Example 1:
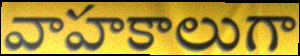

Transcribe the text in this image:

వాహకాలుగా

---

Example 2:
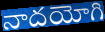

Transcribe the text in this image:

నాదయోగి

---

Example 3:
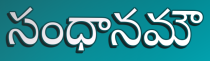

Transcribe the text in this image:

సంధానమౌ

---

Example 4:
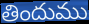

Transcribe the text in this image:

తిందుము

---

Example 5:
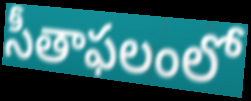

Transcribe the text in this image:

సీతాఫలంలో